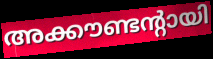
അക്കൗണ്ടന്റായി